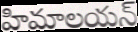
హిమాలయన్